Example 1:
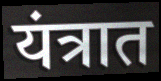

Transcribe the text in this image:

यंत्रात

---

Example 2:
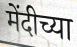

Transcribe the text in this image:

मेंदीच्या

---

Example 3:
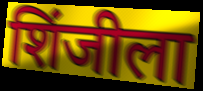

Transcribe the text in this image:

शिंजीला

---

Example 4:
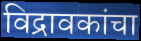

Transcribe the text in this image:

विद्रावकांचा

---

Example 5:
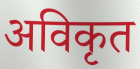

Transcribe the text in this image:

अविकृत